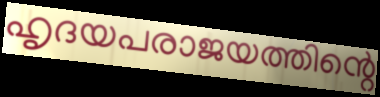
ഹൃദയപരാജയത്തിന്റെ